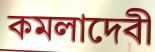
কমলাদেবী